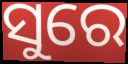
ସୁରେ